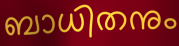
ബാധിതനും